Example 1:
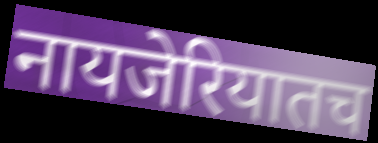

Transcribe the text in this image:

नायजेरियातच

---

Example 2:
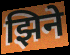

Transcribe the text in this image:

झिने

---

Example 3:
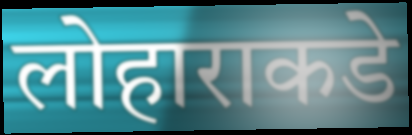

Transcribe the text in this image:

लोहाराकडे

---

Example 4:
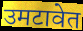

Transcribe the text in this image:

उमटावेत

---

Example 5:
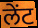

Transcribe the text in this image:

लेंट